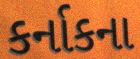
કર્નાકના